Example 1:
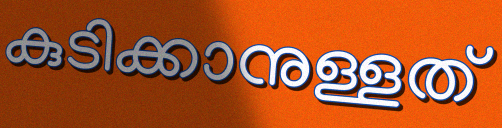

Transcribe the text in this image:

കുടിക്കാനുള്ളത്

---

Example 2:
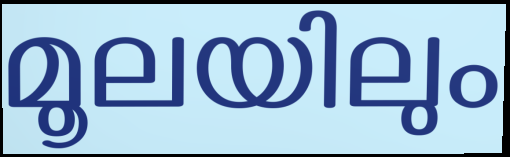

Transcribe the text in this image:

മൂലയിലും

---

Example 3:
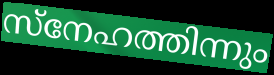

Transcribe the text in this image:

സ്നേഹത്തിന്നും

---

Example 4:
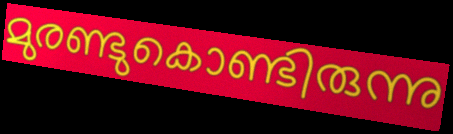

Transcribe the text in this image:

മുരണ്ടുകൊണ്ടിരുന്നു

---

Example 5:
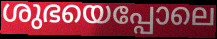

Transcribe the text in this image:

ശുഭയെപ്പോലെ